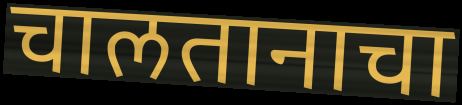
चालतानाचा